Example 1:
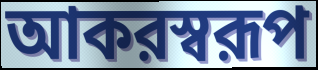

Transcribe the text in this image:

আকরস্বরূপ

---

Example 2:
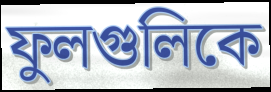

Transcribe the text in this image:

ফুলগুলিকে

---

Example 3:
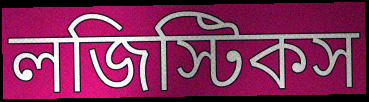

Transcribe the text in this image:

লজিস্টিকস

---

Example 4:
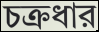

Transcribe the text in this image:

চক্রধার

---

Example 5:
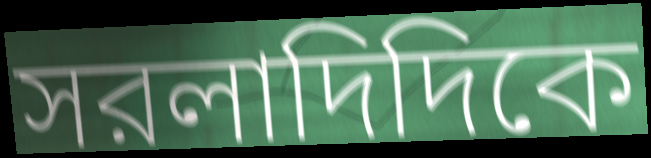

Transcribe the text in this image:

সরলাদিদিকে